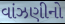
વાંઝણીનો